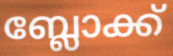
ബ്ലോക്ക്